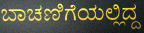
ಬಾಚಣಿಗೆಯಲ್ಲಿದ್ದ